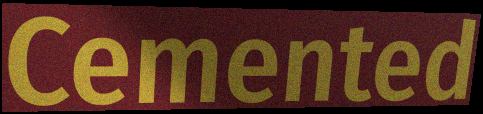
Cemented